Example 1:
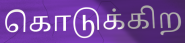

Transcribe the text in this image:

கொடுக்கிற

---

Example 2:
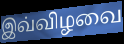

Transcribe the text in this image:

இவ்விழவை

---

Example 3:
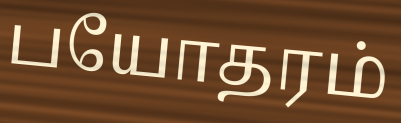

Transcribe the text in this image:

பயோதரம்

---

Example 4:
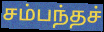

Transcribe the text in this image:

சம்பந்தச்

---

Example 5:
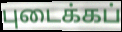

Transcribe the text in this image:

புடைக்கப்